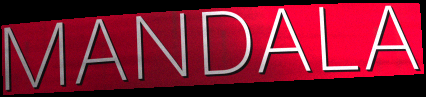
MANDALA